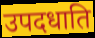
उपदधाति